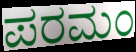
ಪರಮಂ